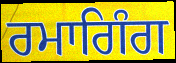
ਰਮਾਗਿੰਗ